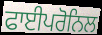
ਫਾਈਪਰੋਨਿਲ